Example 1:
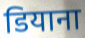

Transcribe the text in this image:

डियाना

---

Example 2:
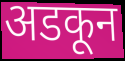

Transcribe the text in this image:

अडकून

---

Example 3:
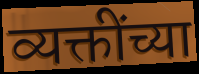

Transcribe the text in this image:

व्यक्तींच्या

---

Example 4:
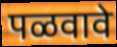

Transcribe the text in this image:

पळवावे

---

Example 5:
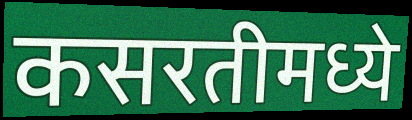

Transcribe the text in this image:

कसरतीमध्ये